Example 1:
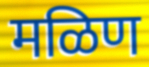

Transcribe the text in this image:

मळिण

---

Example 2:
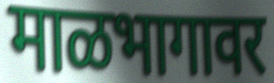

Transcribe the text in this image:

माळभागावर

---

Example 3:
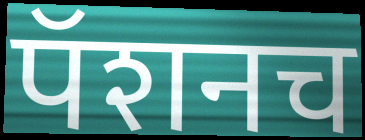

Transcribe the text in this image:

पॅशनच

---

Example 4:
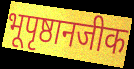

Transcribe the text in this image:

भूपृष्ठानजीक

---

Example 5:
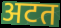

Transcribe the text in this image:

अटत